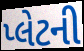
પ્લેટની